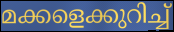
മക്കളെക്കുറിച്ച്